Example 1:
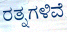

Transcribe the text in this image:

ರತ್ನಗಳಿವೆ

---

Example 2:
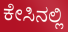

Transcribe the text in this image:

ಕೇಸಿನಲ್ಲಿ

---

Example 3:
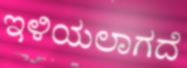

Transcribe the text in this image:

ಇಳಿಯಲಾಗದೆ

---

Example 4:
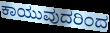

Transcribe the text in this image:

ಕಾಯುವುದರಿಂದ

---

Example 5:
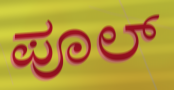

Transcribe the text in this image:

ಪೂಲ್